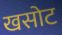
खसोट